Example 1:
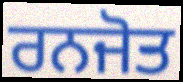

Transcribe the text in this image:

ਰਨਜੋਤ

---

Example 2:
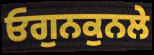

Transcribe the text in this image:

ਓਗੁਨਕੁਨਲੇ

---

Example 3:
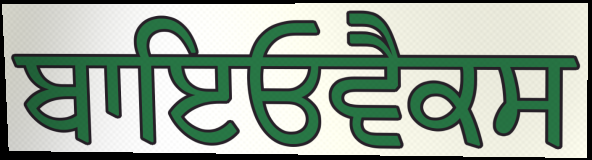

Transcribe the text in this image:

ਬਾਇਓਵੈਕਸ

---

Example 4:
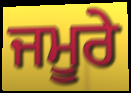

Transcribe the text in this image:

ਜਮੂਰੇ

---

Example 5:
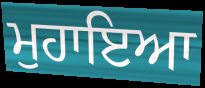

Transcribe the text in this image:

ਮੁਹਾਇਆ